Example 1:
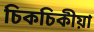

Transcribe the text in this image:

চিকচিকীয়া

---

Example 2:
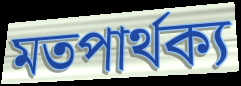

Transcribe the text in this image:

মতপাৰ্থক্য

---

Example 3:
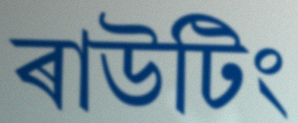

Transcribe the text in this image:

ৰাউটিং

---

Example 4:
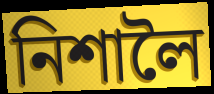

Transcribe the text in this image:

নিশালৈ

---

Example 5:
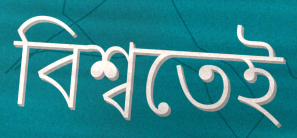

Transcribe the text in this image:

বিশ্বতেই